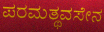
ಪರಮತ್ಥವಸೇನ